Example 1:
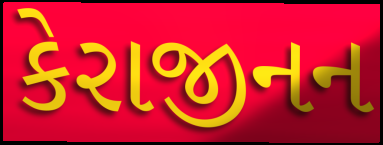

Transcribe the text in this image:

કેરાજીનન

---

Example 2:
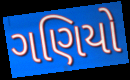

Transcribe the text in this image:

ગણિયો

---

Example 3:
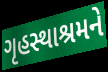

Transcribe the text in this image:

ગૃહસ્થાશ્રમને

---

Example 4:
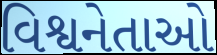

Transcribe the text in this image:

વિશ્વનેતાઓ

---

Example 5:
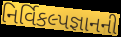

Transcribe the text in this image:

નિર્વિકલ્પજ્ઞાનની